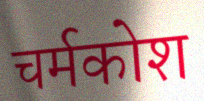
चर्मकोश